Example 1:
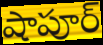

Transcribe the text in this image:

షాపూర్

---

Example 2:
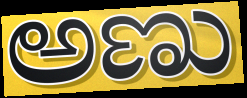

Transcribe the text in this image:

అణు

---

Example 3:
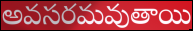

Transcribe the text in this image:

అవసరమవుతాయి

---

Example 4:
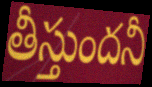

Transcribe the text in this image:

తీస్తుందనీ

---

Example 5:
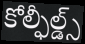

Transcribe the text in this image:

కోల్ఫీల్డ్స్